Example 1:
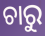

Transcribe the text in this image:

ଚାରୁ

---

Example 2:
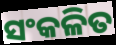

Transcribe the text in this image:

ସଂକଳିତ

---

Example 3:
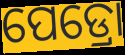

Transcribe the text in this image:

ପେଡ୍ରୋ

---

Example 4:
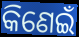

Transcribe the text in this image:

କିଣେଇଁ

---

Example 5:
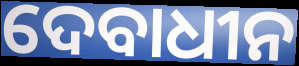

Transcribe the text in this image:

ଦେବାଧୀନ